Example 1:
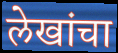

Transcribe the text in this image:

लेखांचा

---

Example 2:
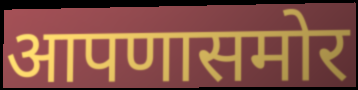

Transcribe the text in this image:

आपणासमोर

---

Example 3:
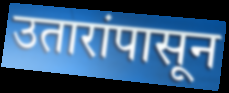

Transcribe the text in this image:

उतारांपासून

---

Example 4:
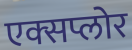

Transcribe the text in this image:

एक्‍सप्लोर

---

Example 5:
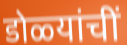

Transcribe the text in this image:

डोळ्यांचीं